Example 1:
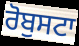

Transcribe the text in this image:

ਰੋਬੁਸਟਾ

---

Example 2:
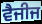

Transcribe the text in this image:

ਵੈਜੀਜ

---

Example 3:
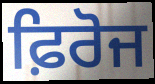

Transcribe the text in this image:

ਫ਼ਿਰੋਜ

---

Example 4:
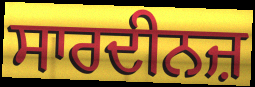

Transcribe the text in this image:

ਸਾਰਦੀਨਜ਼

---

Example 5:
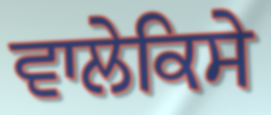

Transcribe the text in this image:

ਵਾਲੇਕਿਸੇ